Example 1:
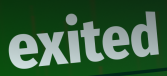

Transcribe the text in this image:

exited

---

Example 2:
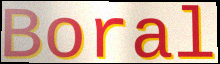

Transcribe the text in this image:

Boral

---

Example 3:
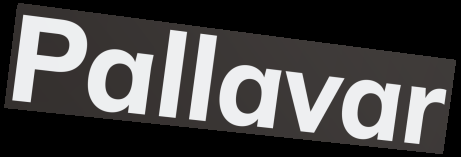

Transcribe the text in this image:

Pallavar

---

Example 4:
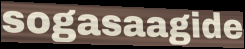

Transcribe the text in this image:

sogasaagide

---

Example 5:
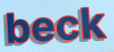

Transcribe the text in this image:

beck